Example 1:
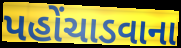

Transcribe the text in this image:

પહોંચાડવાના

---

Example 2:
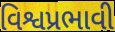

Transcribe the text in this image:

વિશ્વપ્રભાવી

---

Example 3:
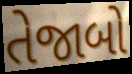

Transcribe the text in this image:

તેજાબો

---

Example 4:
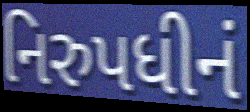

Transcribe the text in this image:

નિરુપધીનં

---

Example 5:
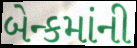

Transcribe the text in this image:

બેન્કમાંની